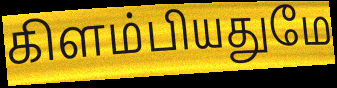
கிளம்பியதுமே